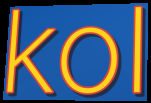
kol